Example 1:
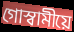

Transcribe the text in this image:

গোস্বামীয়ে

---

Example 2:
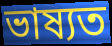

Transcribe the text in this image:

ভাষ্যত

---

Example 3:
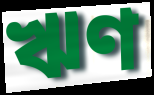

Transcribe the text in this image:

ঋণ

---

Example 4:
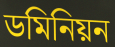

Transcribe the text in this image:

ডমিনিয়ন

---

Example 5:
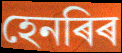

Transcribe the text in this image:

হেনৰিৰ